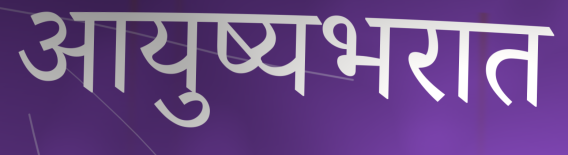
आयुष्यभरात